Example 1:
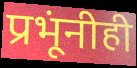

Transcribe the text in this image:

प्रभूंनीही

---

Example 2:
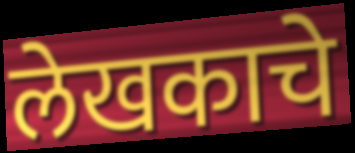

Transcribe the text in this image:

लेखकाचे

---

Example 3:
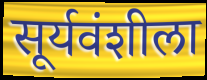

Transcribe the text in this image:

सूर्यवंशीला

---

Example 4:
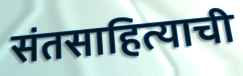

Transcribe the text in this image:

संतसाहित्याची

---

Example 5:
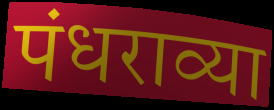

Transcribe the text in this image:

पंधराव्या